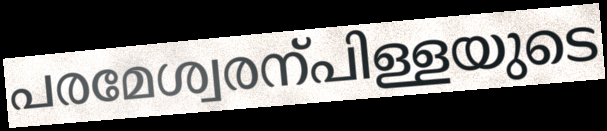
പരമേശ്വരന്പിള്ളയുടെ